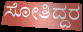
ಸೋತಿದ್ದರ